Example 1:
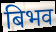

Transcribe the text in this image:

बिभव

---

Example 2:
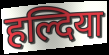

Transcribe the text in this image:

हल्दिया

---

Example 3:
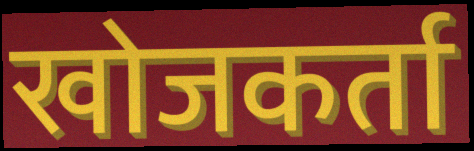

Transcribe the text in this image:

खोजकर्ता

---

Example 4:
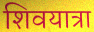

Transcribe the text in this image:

शिवयात्रा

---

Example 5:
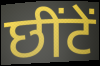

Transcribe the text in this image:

छींटें